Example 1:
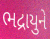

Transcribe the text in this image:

ભદ્રાયુને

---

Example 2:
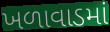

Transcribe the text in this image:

ખળાવાડમાં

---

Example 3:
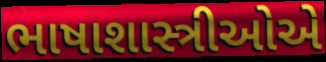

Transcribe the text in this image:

ભાષાશાસ્ત્રીઓએ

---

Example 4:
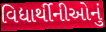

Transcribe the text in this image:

વિદ્યાર્થીનીઓનું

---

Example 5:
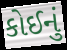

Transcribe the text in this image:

કોઈનું